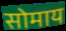
सोमाय